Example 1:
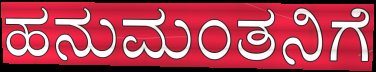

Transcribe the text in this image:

ಹನುಮಂತನಿಗೆ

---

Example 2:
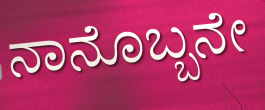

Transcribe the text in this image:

ನಾನೊಬ್ಬನೇ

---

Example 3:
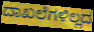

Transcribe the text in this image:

ದಾಖಲೆಗಳಿಲ್ಲದ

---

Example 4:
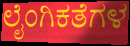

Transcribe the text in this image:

ಲೈಂಗಿಕತೆಗಳ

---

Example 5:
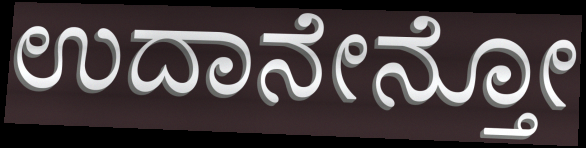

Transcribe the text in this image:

ಉದಾನೇನ್ತೋ